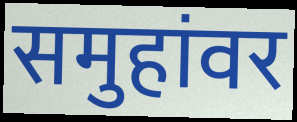
समुहांवर